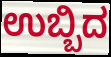
ಉಬ್ಬಿದ